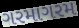
ગરમાગરમ